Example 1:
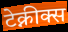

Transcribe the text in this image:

टेक्नीक्स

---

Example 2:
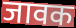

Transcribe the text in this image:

जावक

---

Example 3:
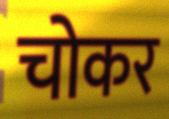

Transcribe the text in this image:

चोकर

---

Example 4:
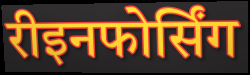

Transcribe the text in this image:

रीइनफोर्सिंग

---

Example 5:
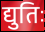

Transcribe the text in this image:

द्युतिः